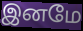
இனமே